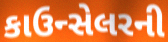
કાઉન્સેલરની